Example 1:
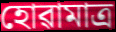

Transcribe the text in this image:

হোৱামাত্ৰ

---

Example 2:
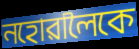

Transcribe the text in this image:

নহোৱালৈকে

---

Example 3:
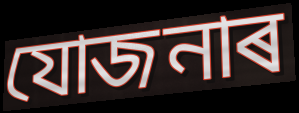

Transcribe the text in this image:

যোজনাৰ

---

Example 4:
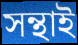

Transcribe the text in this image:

সন্থাই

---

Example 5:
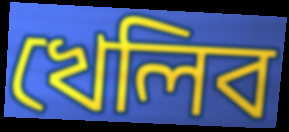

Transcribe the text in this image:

খেলিব